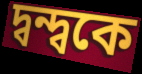
দ্বন্দ্বকে